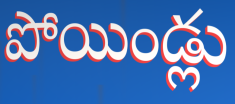
పోయిండ్లు